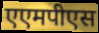
एएमपीएस